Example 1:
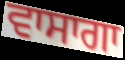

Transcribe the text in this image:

ਵਾਸਾਗਾ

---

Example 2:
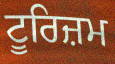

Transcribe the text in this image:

ਟੂਰਿਜ਼ਮ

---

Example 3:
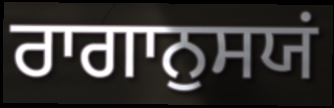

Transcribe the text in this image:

ਰਾਗਾਨੁਸਯਂ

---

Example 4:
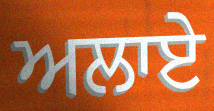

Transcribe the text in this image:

ਅਲਾਏ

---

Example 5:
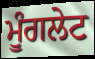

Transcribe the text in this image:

ਮੂੰਗਲੇਟ